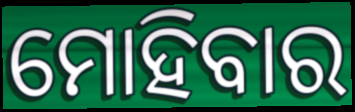
ମୋହିବାର